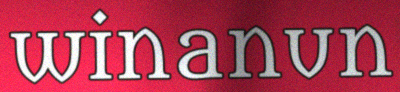
winanun